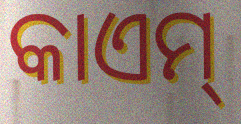
କାଏମ୍